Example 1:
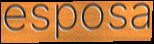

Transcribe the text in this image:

esposa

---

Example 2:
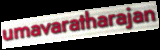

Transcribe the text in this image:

umavaratharajan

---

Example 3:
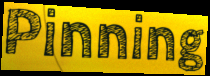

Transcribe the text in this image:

Pinning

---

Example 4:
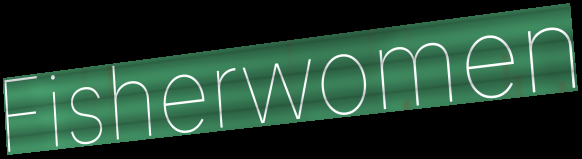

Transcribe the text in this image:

Fisherwomen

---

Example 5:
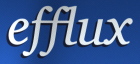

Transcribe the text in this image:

efflux